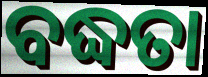
ବଦ୍ଧତା